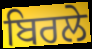
ਬਿਰਲੇ